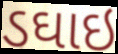
ડઘાઇ